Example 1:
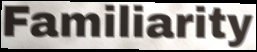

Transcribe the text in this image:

Familiarity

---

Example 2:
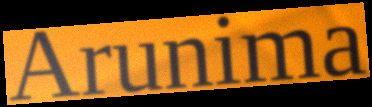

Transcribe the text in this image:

Arunima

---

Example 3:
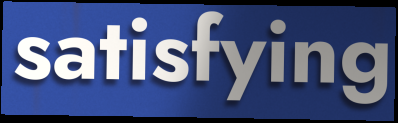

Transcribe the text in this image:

satisfying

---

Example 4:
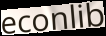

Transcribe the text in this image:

econlib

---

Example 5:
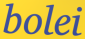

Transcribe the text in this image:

bolei